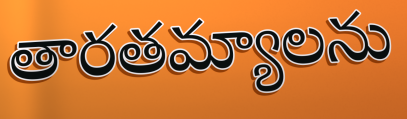
తారతమ్యాలను